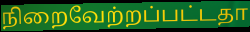
நிறைவேற்றப்பட்டதா